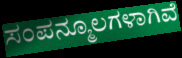
ಸಂಪನ್ಮೂಲಗಳಾಗಿವೆ